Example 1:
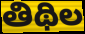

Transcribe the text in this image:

తిథిల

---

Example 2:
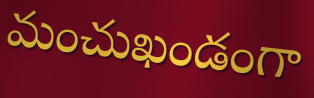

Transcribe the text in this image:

మంచుఖండంగా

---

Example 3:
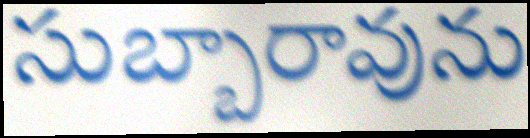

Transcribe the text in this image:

సుబ్బారావును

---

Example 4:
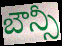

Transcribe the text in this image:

బౌన్సీ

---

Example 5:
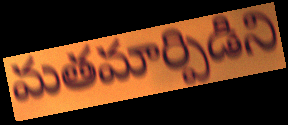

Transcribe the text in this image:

మతమార్పిడిని